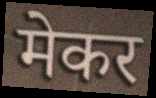
मेकर